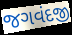
જગવંદજી